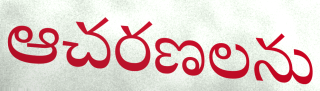
ఆచరణలను